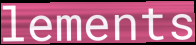
lements